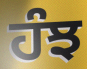
ਹੰਝ